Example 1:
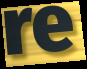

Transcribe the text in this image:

re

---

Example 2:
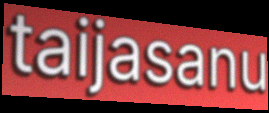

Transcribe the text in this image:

taijasanu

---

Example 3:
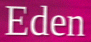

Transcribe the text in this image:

Eden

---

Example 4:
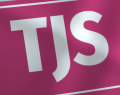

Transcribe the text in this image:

TJS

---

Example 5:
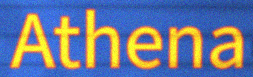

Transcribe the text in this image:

Athena